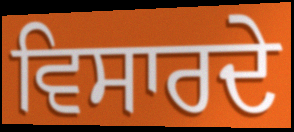
ਵਿਸਾਰਦੇ